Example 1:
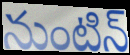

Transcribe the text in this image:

నుంటిన్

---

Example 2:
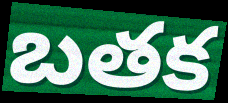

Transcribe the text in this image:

బతక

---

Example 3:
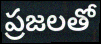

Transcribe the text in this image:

ప్రజలతో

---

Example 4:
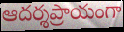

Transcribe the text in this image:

ఆదర్శప్రాయంగా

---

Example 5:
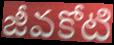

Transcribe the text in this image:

జీవకోటి